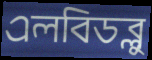
এলবিডব্লু